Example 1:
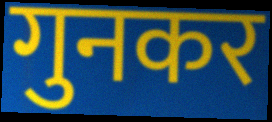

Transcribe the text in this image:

गुनकर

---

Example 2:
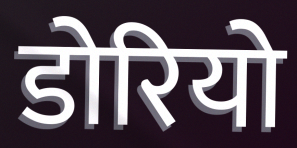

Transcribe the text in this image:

डोरियो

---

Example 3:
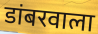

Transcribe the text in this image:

डांबरवाला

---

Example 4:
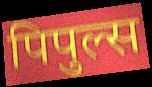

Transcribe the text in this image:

पिपुल्स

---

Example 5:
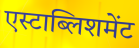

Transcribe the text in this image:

एस्टाब्लिशमेंट